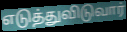
எடுத்துவிடுவார்